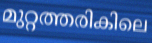
മുറ്റത്തരികിലെ